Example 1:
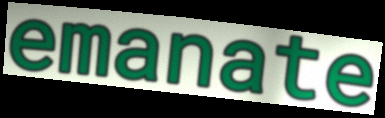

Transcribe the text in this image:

emanate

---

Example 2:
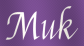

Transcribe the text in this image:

Muk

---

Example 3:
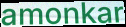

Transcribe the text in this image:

amonkar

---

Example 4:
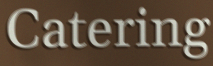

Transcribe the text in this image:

Catering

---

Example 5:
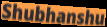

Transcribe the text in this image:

Shubhanshu